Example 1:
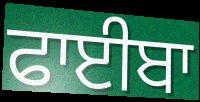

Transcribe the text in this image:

ਫਾਈਬਾ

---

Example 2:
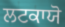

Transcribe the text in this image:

ਲਟਕਾਯੋ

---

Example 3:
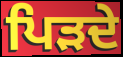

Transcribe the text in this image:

ਪਿੜਦੇ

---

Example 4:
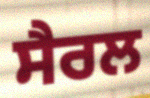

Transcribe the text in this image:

ਸੈਰਲ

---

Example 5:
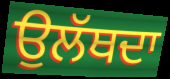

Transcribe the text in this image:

ਉਲੱਥਦਾ